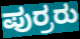
ಪುರ್ರರು